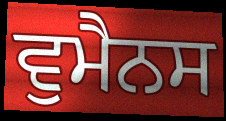
ਵੁਮੈਨਸ